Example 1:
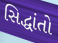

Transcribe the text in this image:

સિદ્ધાંતો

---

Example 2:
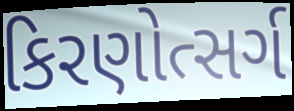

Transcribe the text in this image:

કિરણોત્સર્ગ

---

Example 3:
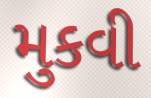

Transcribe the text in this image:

મુકવી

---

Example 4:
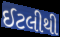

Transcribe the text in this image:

ઈટલીથી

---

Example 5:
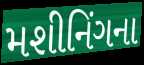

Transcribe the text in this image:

મશીનિંગના